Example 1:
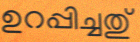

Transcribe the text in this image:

ഉറപ്പിച്ചതു്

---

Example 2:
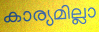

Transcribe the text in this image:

കാര്യമില്ലാ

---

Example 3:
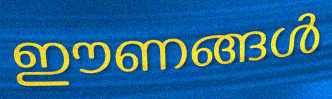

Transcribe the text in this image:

ഈണങ്ങൾ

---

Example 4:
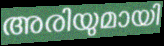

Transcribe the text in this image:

അരിയുമായി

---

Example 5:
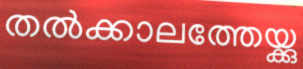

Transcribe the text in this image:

തൽക്കാലത്തേയ്ക്കു